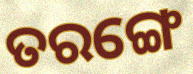
ତରଙ୍ଗେ